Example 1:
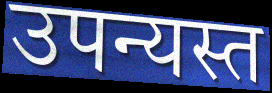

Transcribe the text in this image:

उपन्यस्त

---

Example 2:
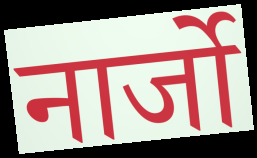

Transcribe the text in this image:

नार्जो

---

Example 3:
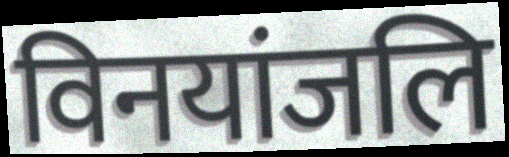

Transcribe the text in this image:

विनयांजलि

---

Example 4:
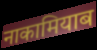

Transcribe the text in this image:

नाकामियाब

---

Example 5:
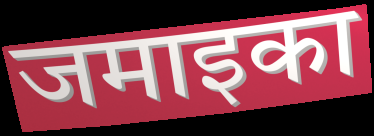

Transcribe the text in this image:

जमाइका